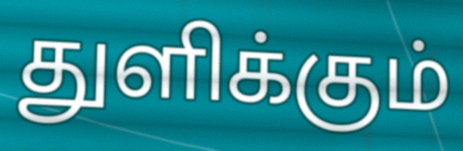
துளிக்கும்